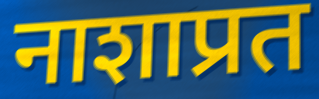
नाशाप्रत